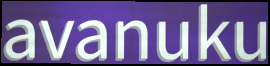
avanuku